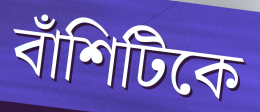
বাঁশিটিকে